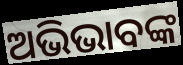
ଅଭିଭାବଙ୍କ